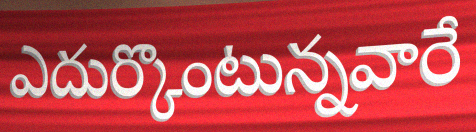
ఎదుర్కొంటున్నవారే